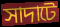
সাদাটে